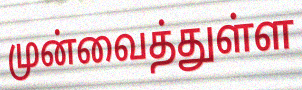
முன்வைத்துள்ள